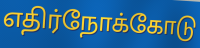
எதிர்நோக்கோடு